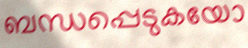
ബന്ധപ്പെടുകയോ